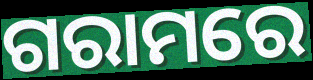
ଗରାମରେ